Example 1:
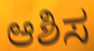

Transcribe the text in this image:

ಆಶಿಸ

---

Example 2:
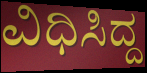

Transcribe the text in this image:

ವಿಧಿಸಿದ್ದ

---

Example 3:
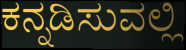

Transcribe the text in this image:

ಕನ್ನಡಿಸುವಲ್ಲಿ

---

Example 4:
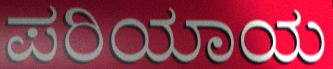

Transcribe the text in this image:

ಪರಿಯಾಯ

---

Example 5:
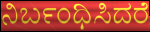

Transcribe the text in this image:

ನಿರ್ಬಂಧಿಸಿದರೆ